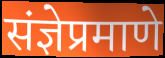
संज्ञेप्रमाणे